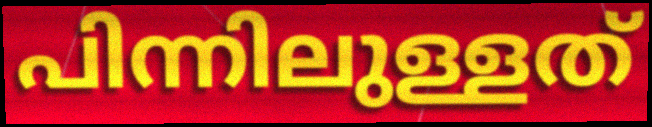
പിന്നിലുള്ളത്